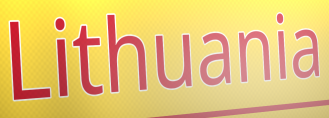
Lithuania